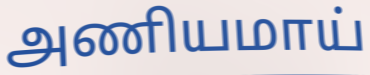
அணியமாய்